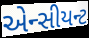
એન્સીયન્ટ